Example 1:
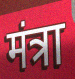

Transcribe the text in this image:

मंत्रा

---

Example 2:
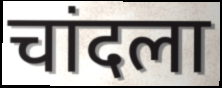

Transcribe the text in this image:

चांदला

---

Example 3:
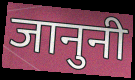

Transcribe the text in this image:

जानुनी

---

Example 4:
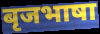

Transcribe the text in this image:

बृजभाषा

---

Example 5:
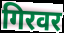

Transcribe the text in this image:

गिरवर